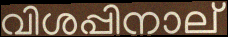
വിശപ്പിനാല്